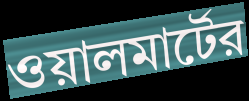
ওয়ালমার্টের